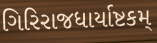
ગિરિરાજધાર્યાષ્ટકમ્